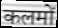
कलमों